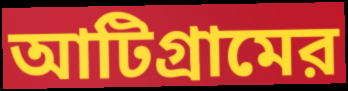
আটিগ্রামের